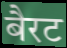
बैरट